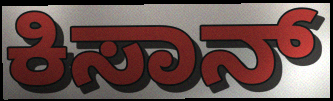
ಕಿಸಾನ್